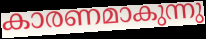
കാരണമാകുന്നു